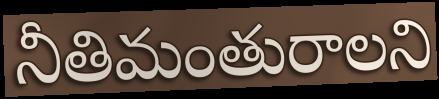
నీతిమంతురాలని